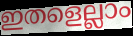
ഇതളെല്ലാം